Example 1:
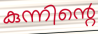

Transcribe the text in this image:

കുന്നിന്റെ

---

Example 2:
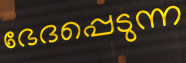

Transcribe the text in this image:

ഭേദപ്പെടുന്ന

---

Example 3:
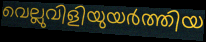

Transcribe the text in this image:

വെല്ലുവിളിയുയർത്തിയ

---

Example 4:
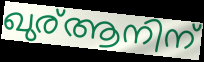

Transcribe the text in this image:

ഖുര്ആനിന്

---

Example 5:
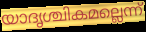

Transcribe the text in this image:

യാദൃശ്ചികമല്ലെന്ന്